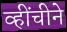
व्हींचीने